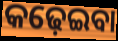
କଢ଼େଇବା